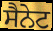
ਸੈਨੇਟ